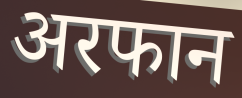
अरफान